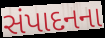
સંપાદનના